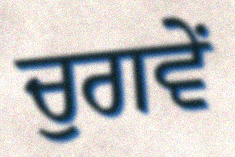
ਚੁਗਵੇਂ